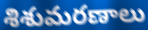
శిశుమరణాలు